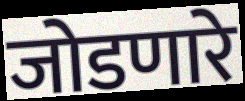
जोडणारे